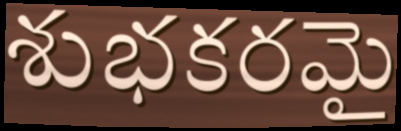
శుభకరమై